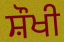
ਸ਼ੌਖੀ